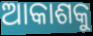
ଆକାଶକୁ